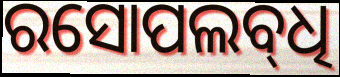
ରସୋପଲବ୍‌ଧି